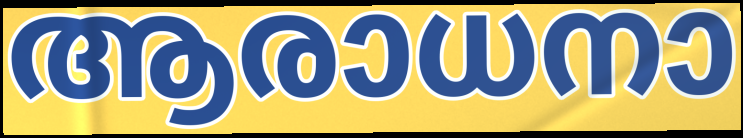
ആരാധനാ